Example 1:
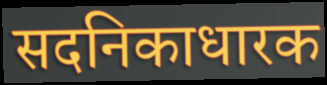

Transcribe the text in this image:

सदनिकाधारक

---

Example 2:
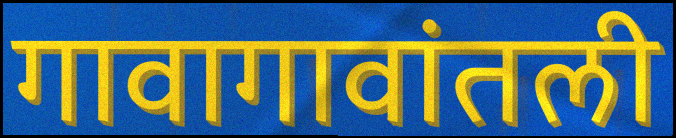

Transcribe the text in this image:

गावागावांतली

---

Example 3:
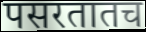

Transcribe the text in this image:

पसरतातच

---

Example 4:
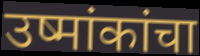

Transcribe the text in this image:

उष्मांकांचा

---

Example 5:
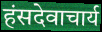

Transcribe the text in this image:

हंसदेवाचार्य